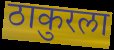
ठाकुरला